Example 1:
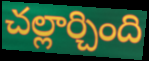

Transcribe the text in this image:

చల్లార్చింది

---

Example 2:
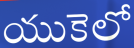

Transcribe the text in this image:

యుకెలో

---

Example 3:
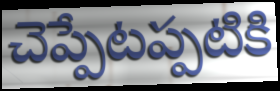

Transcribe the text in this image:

చెప్పేటప్పటికి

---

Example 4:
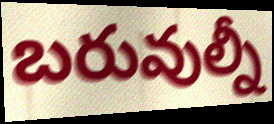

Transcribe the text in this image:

బరువుల్నీ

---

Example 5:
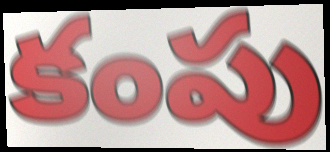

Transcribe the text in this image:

కంపు